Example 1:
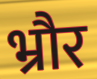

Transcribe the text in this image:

भ्रौर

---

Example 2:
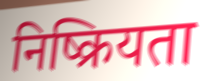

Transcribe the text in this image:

निष्क्रियता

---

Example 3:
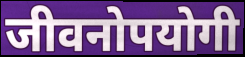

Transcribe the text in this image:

जीवनोपयोगी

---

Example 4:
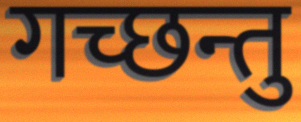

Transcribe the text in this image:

गच्छन्तु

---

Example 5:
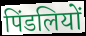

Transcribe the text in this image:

पिंडलियों